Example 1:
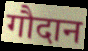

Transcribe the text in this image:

गौदान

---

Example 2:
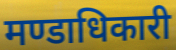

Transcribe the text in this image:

मण्डाधिकारी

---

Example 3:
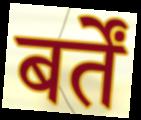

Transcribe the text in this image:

बर्तें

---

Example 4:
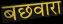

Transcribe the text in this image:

बछवारा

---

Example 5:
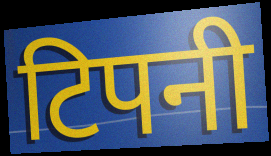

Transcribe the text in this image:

टिपनी